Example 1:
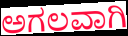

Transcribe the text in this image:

ಅಗಲವಾಗಿ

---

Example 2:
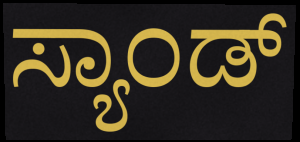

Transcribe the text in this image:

ಸ್ಯಾಂಡ್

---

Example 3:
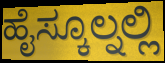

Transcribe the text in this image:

ಹೈಸ್ಕೂಲ್ನಲ್ಲಿ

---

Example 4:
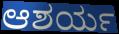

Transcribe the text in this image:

ಆಶರ್ಯ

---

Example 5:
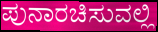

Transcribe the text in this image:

ಪುನಾರಚಿಸುವಲ್ಲಿ